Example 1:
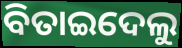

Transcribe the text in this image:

ବିତାଇଦେଲୁ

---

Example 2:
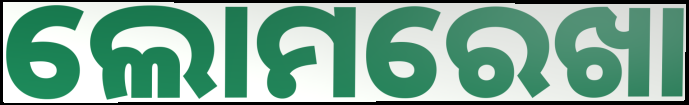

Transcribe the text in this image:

ଲୋମରେଖା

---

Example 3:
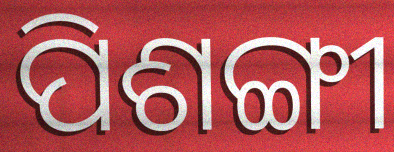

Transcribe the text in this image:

ପିଶଙ୍ଗୀ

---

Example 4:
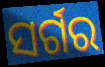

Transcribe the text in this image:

ସର୍ଗର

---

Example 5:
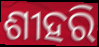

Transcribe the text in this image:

ଶୀହରି